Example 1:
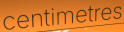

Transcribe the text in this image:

centimetres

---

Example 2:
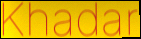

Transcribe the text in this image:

Khadar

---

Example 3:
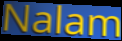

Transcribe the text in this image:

Nalam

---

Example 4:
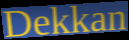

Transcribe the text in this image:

Dekkan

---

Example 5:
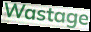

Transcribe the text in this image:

Wastage